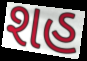
શહ